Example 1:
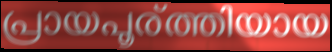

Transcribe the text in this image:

പ്രായപൂര്ത്തിയായ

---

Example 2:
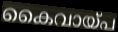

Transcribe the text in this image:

കൈവായ്പ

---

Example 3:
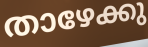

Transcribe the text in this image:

താഴേക്കു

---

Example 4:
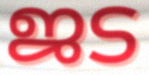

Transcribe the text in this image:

ജട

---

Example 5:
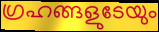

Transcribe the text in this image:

ഗ്രഹങ്ങളുടേയും